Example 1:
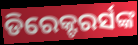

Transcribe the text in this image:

ଡିରେକ୍ଟରର୍ସଙ୍କ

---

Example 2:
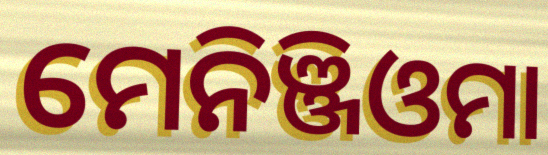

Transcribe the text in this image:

ମେନିଞ୍ଜିଓମା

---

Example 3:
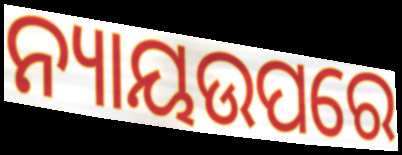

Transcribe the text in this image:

ନ୍ୟାୟଉପରେ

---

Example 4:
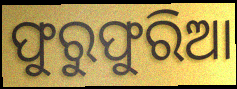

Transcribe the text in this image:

ଫୁରୁଫୁରିଆ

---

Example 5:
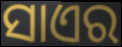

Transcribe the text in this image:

ସାଏର